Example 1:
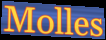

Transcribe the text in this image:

Molles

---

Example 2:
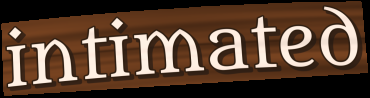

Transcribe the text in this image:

intimated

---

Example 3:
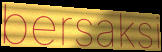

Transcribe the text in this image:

bersaksi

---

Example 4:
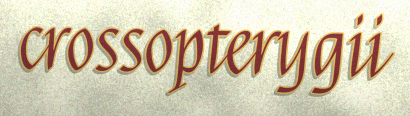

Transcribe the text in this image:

crossopterygii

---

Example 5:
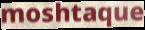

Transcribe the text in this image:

moshtaque